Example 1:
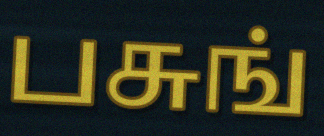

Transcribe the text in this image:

பசுங்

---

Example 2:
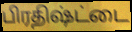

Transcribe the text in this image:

பிரதிஷ்ட்டை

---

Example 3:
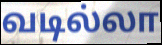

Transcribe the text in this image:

வடில்லா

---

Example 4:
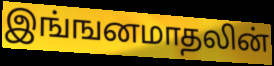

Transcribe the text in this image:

இங்ஙனமாதலின்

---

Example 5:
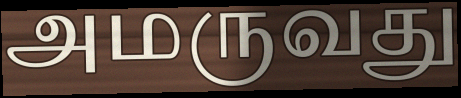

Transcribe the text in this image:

அமருவது